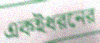
একইধরনের